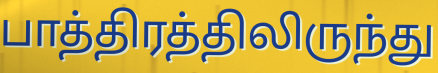
பாத்திரத்திலிருந்து